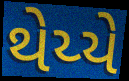
થેય્યે